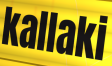
kallaki